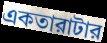
একতারাটার